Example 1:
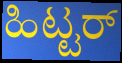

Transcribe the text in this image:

ಹಿಟ್ಟರ್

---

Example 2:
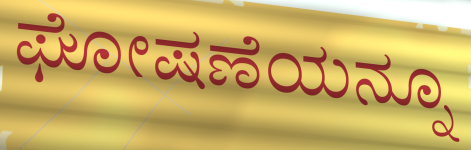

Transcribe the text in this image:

ಘೋಷಣೆಯನ್ನೂ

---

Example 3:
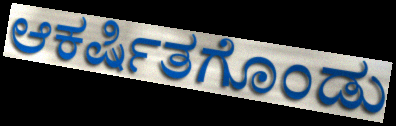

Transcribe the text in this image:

ಆಕರ್ಷಿತಗೊಂಡು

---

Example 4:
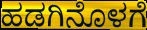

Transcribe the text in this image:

ಹಡಗಿನೊಳಗೆ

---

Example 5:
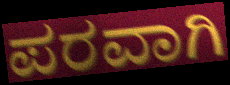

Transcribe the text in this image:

ಪರವಾಗಿ